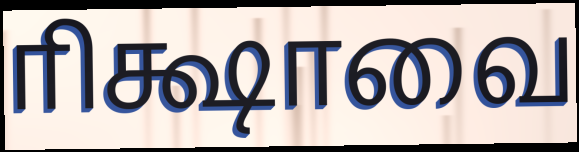
ரிக்ஷாவை